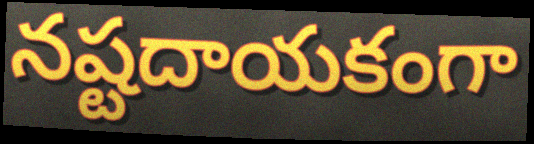
నష్టదాయకంగా